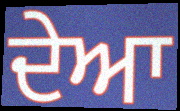
ਦੇਆ